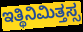
ಇತ್ಥಿನಿಮಿತ್ತಸ್ಸ